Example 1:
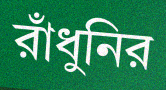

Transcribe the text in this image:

রাঁধুনির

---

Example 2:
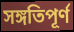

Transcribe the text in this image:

সঙ্গতিপূর্ণ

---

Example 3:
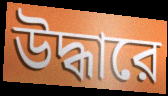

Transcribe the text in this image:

উদ্ধারে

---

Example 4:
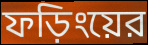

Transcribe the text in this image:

ফড়িংয়ের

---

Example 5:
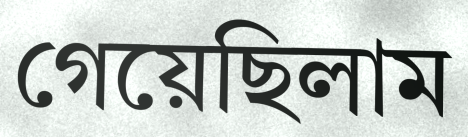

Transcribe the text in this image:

গেয়েছিলাম